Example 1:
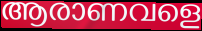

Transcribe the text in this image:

ആരാണവളെ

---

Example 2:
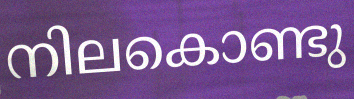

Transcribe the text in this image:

നിലകൊണ്ടു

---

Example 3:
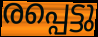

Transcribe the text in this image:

രപ്പെട്ടു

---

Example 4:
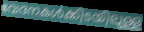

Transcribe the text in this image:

വേദനകൾക്കിടയിലുള്ള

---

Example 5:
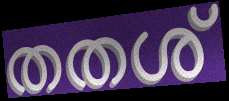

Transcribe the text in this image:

തതശ്